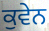
ਕੁਵੇਨ